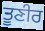
ਤੂਣੀਰ